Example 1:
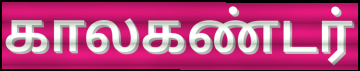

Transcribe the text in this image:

காலகண்டர்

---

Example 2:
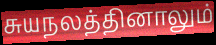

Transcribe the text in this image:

சுயநலத்தினாலும்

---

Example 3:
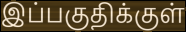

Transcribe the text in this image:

இப்பகுதிக்குள்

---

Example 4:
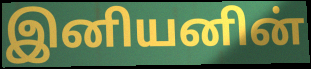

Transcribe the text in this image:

இனியனின்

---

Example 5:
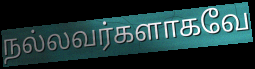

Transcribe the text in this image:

நல்லவர்களாகவே